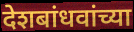
देशबांधवांच्या